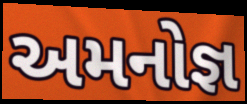
અમનોજ્ઞ